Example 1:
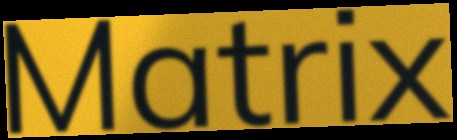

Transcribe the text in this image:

Matrix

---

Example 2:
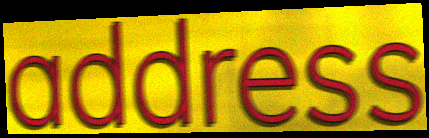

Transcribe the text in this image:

address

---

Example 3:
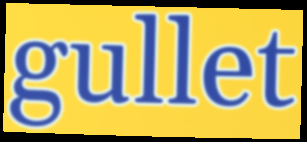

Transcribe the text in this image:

gullet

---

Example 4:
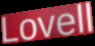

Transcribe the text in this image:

Lovell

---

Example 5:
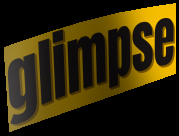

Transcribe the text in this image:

glimpse